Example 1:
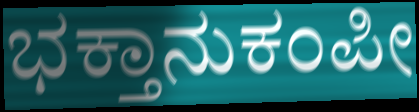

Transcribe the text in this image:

ಭಕ್ತಾನುಕಂಪೀ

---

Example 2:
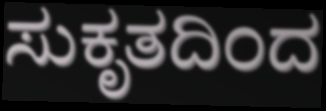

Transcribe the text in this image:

ಸುಕೃತದಿಂದ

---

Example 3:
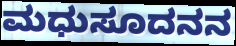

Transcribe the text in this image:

ಮಧುಸೂದನನ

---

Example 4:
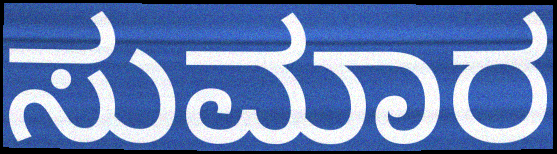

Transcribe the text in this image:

ಸುಮಾರ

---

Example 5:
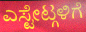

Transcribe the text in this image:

ಎಸ್ಟೇಟ್ಗಳಿಗೆ